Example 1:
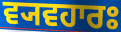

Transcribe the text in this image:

ਵ੍ਯਵਹਾਰਃ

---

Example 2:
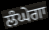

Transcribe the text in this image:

ਲੰਘੇਗਾ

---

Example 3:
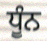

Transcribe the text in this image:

ਧੂੰਨ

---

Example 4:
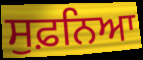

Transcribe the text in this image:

ਸੁਫ਼ਨਿਆ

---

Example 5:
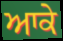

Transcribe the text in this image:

ਆਕੇ